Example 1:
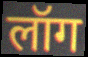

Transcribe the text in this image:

लॉग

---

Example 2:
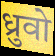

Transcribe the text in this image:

ध्रुवो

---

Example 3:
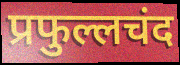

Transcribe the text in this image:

प्रफुल्लचंद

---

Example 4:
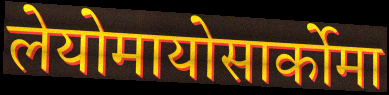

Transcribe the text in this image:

लेयोमायोसार्कोमा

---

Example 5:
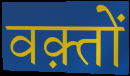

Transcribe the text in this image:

वक़्तों